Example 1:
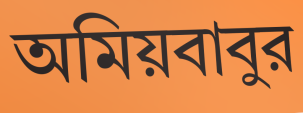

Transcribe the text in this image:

অমিয়বাবুর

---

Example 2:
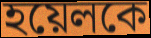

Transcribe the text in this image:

হয়েলকে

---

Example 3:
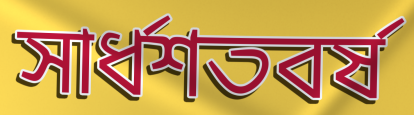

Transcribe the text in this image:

সার্ধশতবর্ষ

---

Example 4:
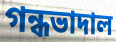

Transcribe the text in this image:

গন্ধভাদাল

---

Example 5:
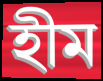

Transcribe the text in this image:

হীম